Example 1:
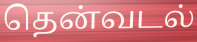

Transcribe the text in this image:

தென்வடல்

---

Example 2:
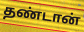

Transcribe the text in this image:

தண்டான்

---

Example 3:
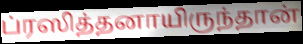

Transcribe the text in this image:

ப்ரஸித்தனாயிருந்தான்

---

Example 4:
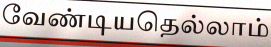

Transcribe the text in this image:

வேண்டியதெல்லாம்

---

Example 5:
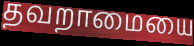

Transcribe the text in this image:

தவறாமையை